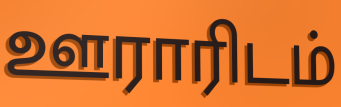
ஊராரிடம்